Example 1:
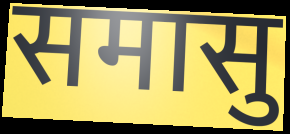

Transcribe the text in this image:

समासु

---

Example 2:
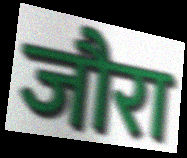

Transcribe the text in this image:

जौरा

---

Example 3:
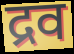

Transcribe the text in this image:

द्रव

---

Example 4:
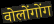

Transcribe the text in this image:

वोलोंगोंग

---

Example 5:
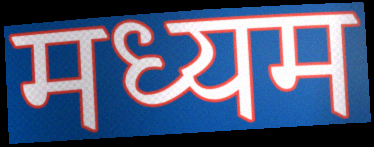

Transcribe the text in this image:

मध्यम